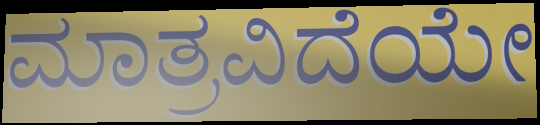
ಮಾತ್ರವಿದೆಯೇ